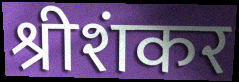
श्रीशंकर